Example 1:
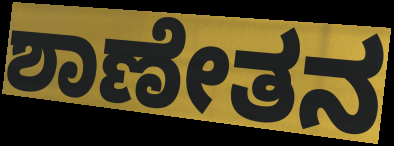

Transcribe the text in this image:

ಶಾಣೇತನ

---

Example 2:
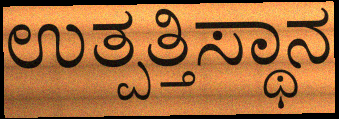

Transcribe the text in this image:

ಉತ್ಪತ್ತಿಸ್ಥಾನ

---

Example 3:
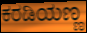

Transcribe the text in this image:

ಕರಡಿಯಣ್ಣ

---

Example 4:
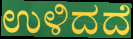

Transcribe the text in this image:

ಉಳಿದದೆ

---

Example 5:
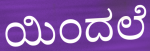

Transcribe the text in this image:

ಯಿಂದಲೆ